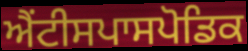
ਐਂਟੀਸਪਾਸਪੋਡਿਕ